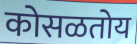
कोसळतोय